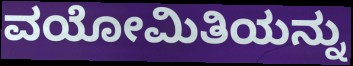
ವಯೋಮಿತಿಯನ್ನು